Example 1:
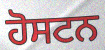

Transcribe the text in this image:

ਹੋਸਟਨ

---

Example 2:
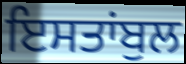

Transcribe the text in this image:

ਇਸਤਾਂਬੁਲ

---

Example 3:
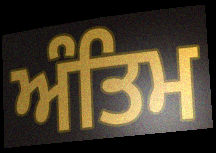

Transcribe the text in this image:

ਅੰਤਿਮ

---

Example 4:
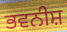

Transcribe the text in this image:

ਭਵਨੀਸ਼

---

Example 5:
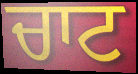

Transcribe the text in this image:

ਚਾਟ